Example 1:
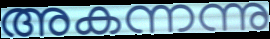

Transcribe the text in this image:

അകന്നന്നു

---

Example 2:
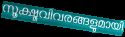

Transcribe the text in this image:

സൂക്ഷ്മവിവരങ്ങളുമായി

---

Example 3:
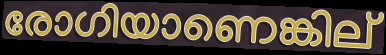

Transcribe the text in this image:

രോഗിയാണെങ്കില്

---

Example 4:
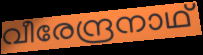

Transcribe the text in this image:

വീരേന്ദ്രനാഥ്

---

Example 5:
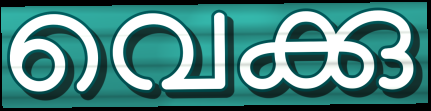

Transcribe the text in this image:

വെക്കു